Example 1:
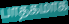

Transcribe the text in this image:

பாதகமாக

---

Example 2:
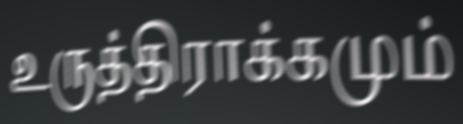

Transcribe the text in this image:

உருத்திராக்கமும்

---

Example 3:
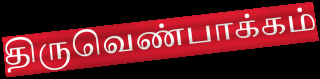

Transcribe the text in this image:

திருவெண்பாக்கம்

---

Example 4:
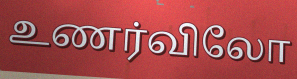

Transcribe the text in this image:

உணர்விலோ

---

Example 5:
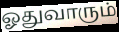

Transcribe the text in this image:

ஓதுவாரும்